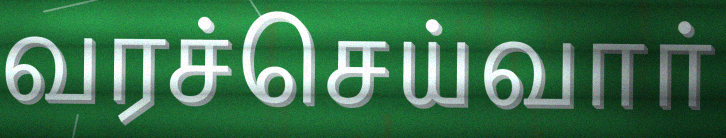
வரச்செய்வார்